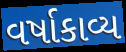
વર્ષાકાવ્ય